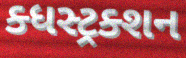
ક્ધસ્ટ્રક્શન